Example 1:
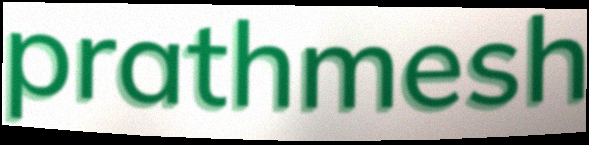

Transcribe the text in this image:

prathmesh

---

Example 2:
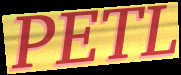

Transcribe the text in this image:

PETL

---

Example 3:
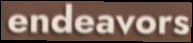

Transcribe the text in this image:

endeavors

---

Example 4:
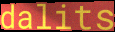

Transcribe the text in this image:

dalits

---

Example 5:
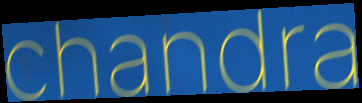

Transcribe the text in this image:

chandra